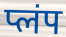
प्लंप